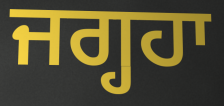
ਜਗ੍ਹਹਾ